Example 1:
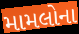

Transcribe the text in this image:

મામલોના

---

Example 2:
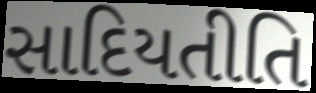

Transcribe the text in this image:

સાદિયતીતિ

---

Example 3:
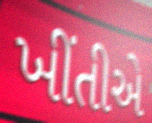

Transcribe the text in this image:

ખીંતીએ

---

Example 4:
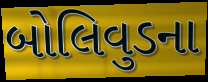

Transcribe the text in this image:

બોલિવુડના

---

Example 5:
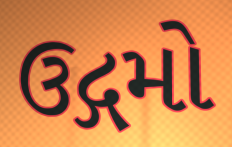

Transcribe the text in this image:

ઉદ્ગમો